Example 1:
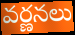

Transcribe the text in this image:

వర్ణనలు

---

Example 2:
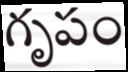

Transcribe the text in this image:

గృపం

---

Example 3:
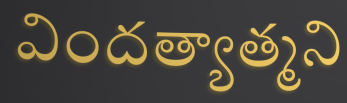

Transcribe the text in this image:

విందత్యాత్మని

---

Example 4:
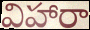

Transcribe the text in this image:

విహారా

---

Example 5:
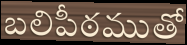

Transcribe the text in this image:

బలిపీఠముతో